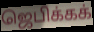
ஜெபிக்கக்